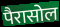
पैरासोल